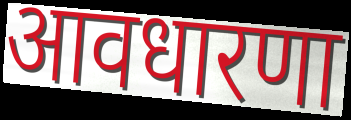
आवधारणा